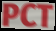
PCT